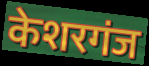
केशरगंज